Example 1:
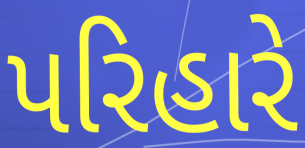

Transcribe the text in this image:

પરિહારે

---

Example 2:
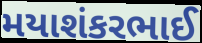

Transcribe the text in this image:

મયાશંકરભાઈ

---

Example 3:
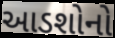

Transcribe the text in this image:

આડશોનો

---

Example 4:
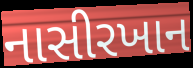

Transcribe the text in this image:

નાસીરખાન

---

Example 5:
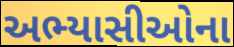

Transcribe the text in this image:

અભ્યાસીઓના